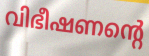
വിഭീഷണന്റെ